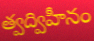
త్వద్విహీనం